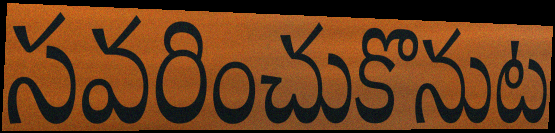
సవరించుకొనుట